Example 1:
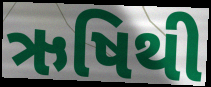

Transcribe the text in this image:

ઋષિથી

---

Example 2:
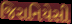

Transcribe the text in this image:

જિરાનિયેસી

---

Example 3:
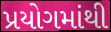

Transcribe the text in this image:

પ્રયોગમાંથી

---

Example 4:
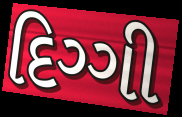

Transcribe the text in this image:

દિગ્ગી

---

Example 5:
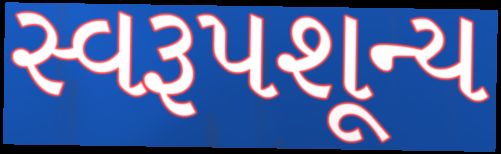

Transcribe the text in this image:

સ્વરૂપશૂન્ય